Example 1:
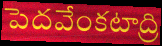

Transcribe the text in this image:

పెదవేంకటాద్రి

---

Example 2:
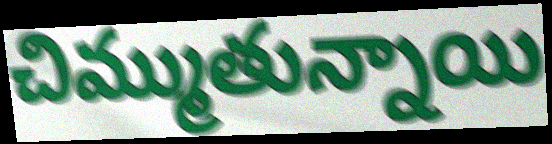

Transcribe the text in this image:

చిమ్ముతున్నాయి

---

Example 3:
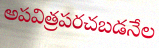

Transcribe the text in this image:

అపవిత్రపరచబడనేల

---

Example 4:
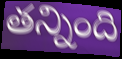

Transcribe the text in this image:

తన్నింది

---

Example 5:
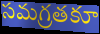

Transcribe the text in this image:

సమగ్రతకూ